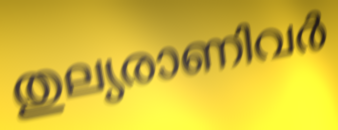
തുല്യരാണിവർ